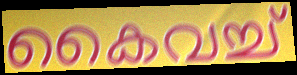
കൈവച്ച്